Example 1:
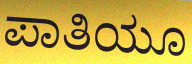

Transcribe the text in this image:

ಪಾತಿಯೂ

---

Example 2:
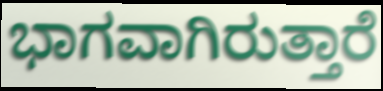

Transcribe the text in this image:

ಭಾಗವಾಗಿರುತ್ತಾರೆ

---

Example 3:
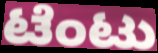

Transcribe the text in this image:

ಟೆಂಟು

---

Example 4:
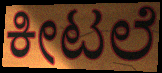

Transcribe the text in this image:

ಕೀಟಲೆ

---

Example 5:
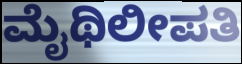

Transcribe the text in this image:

ಮೈಥಿಲೀಪತಿ